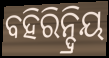
ବହିରିନ୍ଦ୍ରିୟ